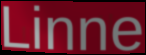
Linne